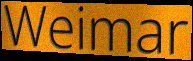
Weimar